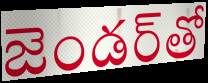
జెండర్‌తో